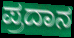
ಪ್ರದಾನ